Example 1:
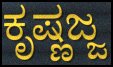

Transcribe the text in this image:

ಕೃಷ್ಣಜ್ಜ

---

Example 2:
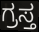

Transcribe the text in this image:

ಗ್ರಸ್ತ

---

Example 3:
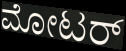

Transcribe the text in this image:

ಮೋಟರ್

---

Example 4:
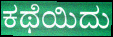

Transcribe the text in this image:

ಕಥೆಯಿದು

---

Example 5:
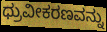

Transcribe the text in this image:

ಧ್ರುವೀಕರಣವನ್ನು